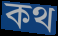
কথ